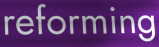
reforming